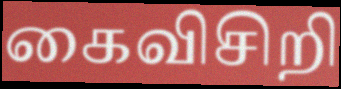
கைவிசிறி